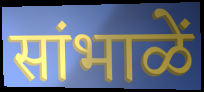
सांभाळें